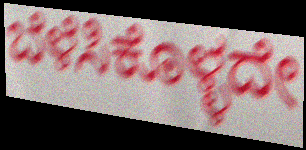
ಬೆಳೆಸಿಕೊಳ್ಳದೇ